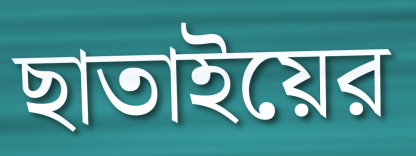
ছাতাইয়ের